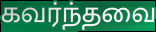
கவர்ந்தவை